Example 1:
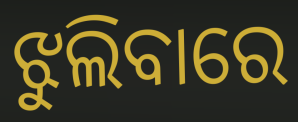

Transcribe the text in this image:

ଝୁଲିବାରେ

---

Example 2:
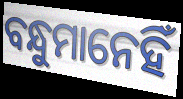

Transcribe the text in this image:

ବନ୍ଧୁମାନେହିଁ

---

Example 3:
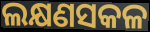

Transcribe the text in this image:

ଲକ୍ଷଣସକଳ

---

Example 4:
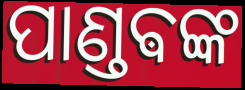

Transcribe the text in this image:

ପାଣ୍ଡଵଙ୍କ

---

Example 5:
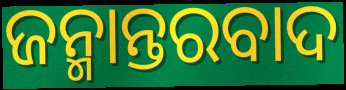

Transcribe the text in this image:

ଜନ୍ମାନ୍ତରବାଦ